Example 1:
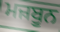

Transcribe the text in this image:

ਮਜ਼ਬੂਨ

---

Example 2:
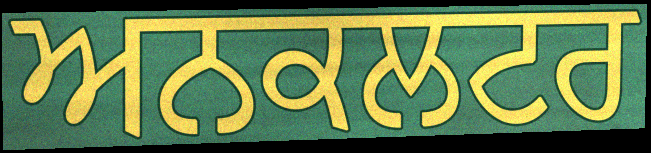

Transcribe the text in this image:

ਅਨਕਲਟਰ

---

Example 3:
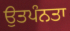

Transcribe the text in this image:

ਉਤਪੰਨਤਾ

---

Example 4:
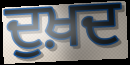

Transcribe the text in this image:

ਦੁਖ਼ਦ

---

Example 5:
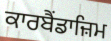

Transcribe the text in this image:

ਕਾਰਬੈਂਡਾਜ਼ਿਮ